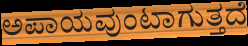
ಅಪಾಯವುಂಟಾಗುತ್ತದೆ